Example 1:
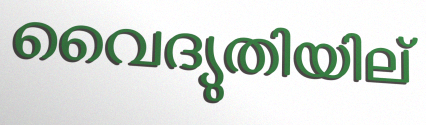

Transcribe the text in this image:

വൈദ്യുതിയില്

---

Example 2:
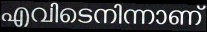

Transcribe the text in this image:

എവിടെനിന്നാണ്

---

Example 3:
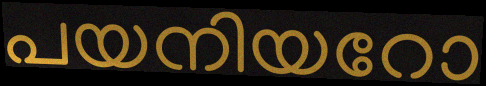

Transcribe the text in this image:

പയനിയറോ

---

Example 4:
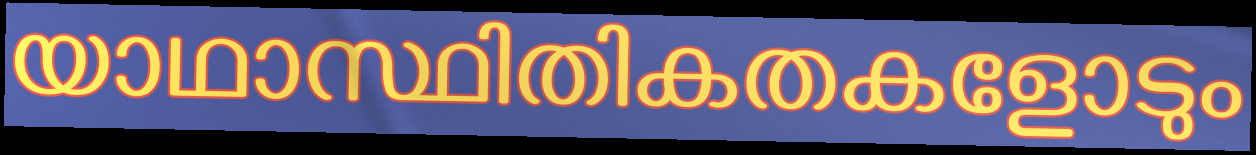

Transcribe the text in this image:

യാഥാസ്ഥിതികതകളോടും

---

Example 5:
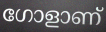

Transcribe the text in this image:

ഗോളാണ്